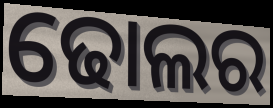
ଢୋଲର